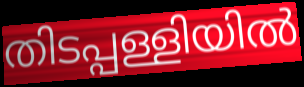
തിടപ്പള്ളിയിൽ